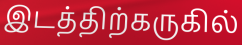
இடத்திற்கருகில்